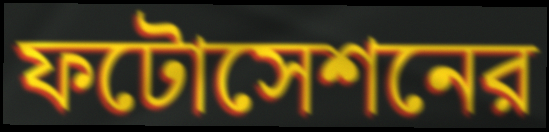
ফটোসেশনের